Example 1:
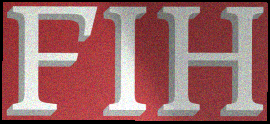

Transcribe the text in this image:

FIH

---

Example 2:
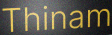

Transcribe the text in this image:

Thinam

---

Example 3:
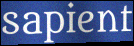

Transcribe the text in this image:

sapient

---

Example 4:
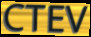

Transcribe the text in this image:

CTEV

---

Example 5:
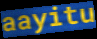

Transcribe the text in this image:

aayitu